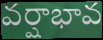
వర్షాభావ